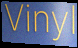
Vinyl